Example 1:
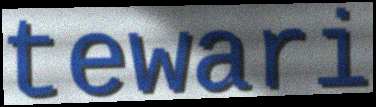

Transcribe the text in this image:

tewari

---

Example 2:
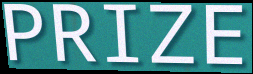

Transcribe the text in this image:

PRIZE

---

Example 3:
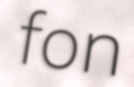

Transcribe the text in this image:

fon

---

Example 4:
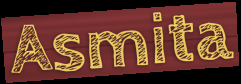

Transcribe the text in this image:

Asmita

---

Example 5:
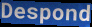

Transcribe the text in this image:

Despond